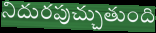
నిదురపుచ్చుతుంది